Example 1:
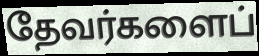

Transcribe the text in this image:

தேவர்களைப்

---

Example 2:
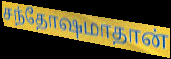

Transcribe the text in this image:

சந்தோஷமாதான்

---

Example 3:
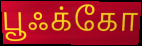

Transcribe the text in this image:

பூஃக்கோ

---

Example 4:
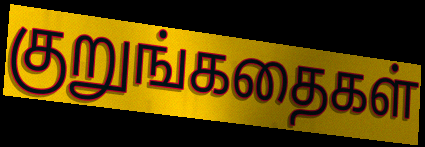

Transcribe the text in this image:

குறுங்கதைகள்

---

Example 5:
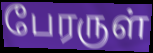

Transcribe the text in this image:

பேரருள்